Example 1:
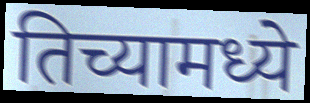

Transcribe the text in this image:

तिच्यामध्ये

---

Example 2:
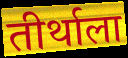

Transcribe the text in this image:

तीर्थाला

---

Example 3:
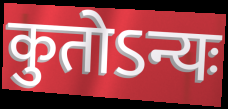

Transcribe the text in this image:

कुतोऽन्यः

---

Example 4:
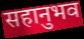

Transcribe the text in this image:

सहानुभव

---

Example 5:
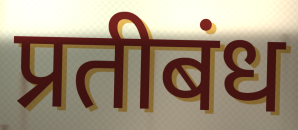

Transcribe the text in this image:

प्रतीबंध